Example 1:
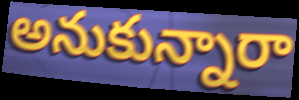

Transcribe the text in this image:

అనుకున్నారా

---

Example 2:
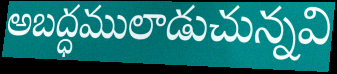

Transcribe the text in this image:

అబద్ధములాడుచున్నవి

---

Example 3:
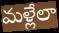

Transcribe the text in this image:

మళ్లేలా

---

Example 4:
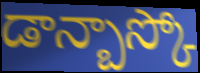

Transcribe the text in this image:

డాన్బాస్కో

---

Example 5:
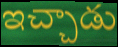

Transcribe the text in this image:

ఇచ్చాడు